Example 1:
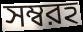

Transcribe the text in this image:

সম্বরহ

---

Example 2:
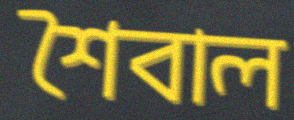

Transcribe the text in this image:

শৈবাল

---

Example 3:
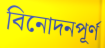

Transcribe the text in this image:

বিনোদনপূর্ণ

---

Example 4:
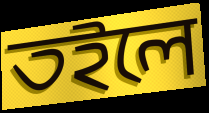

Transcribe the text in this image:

তইলে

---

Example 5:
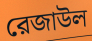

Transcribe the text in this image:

রেজাউল